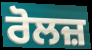
ਰੋਲਜ਼